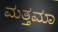
ಮತ್ತಮಾ